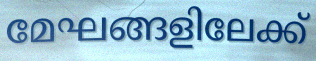
മേഘങ്ങളിലേക്ക്